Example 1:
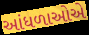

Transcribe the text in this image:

આંધળાઓએ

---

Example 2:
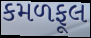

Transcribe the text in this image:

કમળફૂલ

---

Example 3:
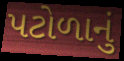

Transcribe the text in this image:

પટોળાનું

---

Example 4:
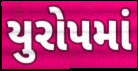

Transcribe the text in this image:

યુરોપમાં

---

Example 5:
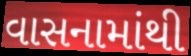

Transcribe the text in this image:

વાસનામાંથી